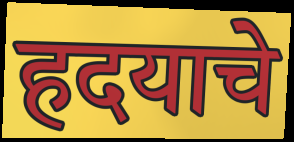
हदयाचे